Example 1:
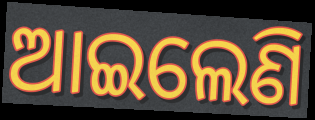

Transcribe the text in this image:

ଆଇଲେଣି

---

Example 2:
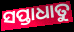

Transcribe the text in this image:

ସପ୍ତାଧାତୁ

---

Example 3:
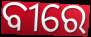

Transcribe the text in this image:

ବୀରେ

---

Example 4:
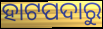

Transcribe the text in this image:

ହାଟପଦାରୁ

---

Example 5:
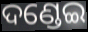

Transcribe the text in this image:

ଦଣ୍ଡେଇ